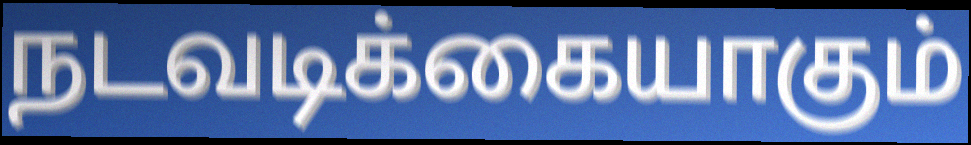
நடவடிக்கையாகும்